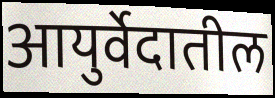
आयुर्वेदातील